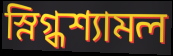
স্নিগ্ধশ্যামল